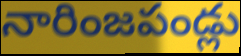
నారింజపండ్లు